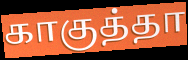
காகுத்தா